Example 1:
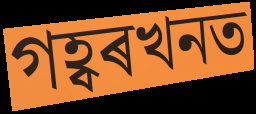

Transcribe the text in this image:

গহ্বৰখনত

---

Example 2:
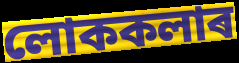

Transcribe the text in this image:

লোককলাৰ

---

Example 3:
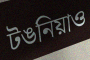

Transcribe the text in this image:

টঙনিয়াও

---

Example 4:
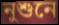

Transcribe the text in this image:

নুশুনে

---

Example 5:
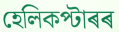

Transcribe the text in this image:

হেলিকপ্টাৰৰ